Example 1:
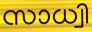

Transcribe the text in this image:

സാധ്വി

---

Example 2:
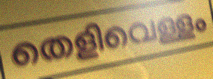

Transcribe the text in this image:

തെളിവെള്ളം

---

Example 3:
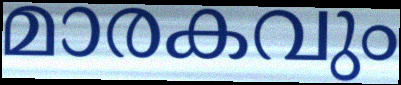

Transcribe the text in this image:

മാരകവും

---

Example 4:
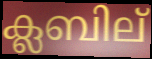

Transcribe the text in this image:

ക്ലബില്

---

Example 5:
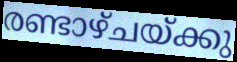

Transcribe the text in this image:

രണ്ടാഴ്ചയ്ക്കു